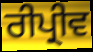
ਰੀਪ੍ਰੀਵ